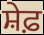
ਸ਼ੇਫ਼